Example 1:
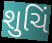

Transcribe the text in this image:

શુચિં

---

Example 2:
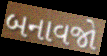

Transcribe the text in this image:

બનાવજો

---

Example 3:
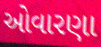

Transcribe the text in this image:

ઓવારણા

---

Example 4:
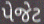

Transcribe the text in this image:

પેજેટ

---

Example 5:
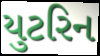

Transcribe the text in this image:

યુટરિન